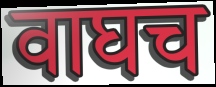
वाघच